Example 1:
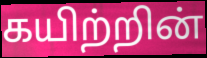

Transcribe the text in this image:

கயிற்றின்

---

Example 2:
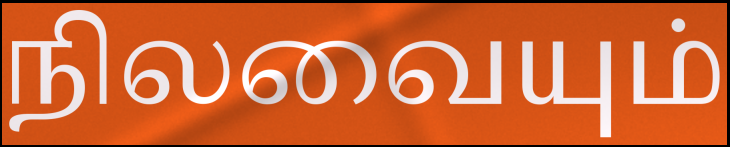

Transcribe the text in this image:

நிலவையும்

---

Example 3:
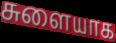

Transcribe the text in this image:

சுளையாக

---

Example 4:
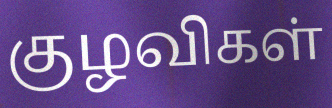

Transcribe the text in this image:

குழவிகள்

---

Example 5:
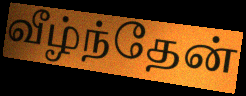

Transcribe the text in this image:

வீழ்ந்தேன்